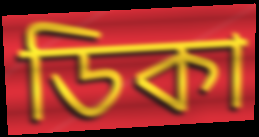
ডিকা